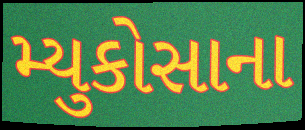
મ્યુકોસાના